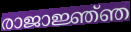
രാജാജ്ഞ്ഞ